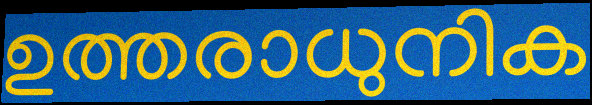
ഉത്തരാധുനിക